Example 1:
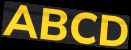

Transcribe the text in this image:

ABCD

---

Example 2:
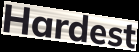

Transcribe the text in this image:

Hardest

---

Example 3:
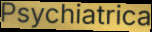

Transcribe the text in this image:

Psychiatrica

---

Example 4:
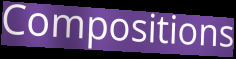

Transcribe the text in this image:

Compositions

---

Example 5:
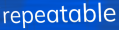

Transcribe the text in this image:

repeatable